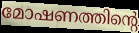
മോഷണത്തിന്റെ